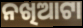
ନଖିଆଟା